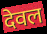
देवल